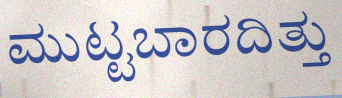
ಮುಟ್ಟಬಾರದಿತ್ತು